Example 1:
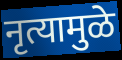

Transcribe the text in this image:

नृत्यामुळे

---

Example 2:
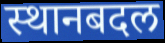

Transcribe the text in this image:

स्थानबदल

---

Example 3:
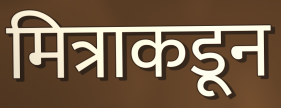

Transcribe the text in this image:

मित्राकडून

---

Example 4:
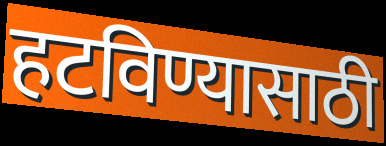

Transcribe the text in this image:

हटविण्यासाठी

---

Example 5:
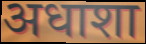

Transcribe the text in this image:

अधाशा